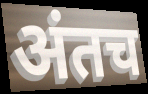
अंतच